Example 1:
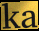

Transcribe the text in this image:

ka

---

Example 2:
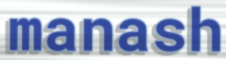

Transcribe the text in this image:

manash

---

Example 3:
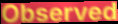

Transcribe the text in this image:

Observed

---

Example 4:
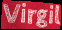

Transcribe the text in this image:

Virgil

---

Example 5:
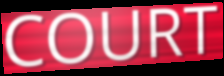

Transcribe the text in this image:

COURT